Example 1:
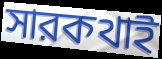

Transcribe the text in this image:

সারকথাই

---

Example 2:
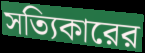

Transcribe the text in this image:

সত্যিকারের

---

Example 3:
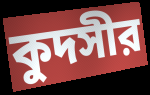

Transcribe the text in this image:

কুদসীর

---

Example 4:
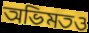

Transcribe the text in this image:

অভিমতও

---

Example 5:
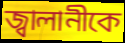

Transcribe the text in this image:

জ্বালানীকে